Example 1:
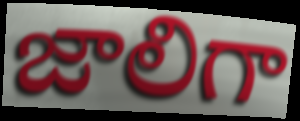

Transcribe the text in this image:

జాలిగా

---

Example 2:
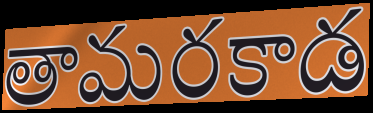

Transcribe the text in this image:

తామరకాడ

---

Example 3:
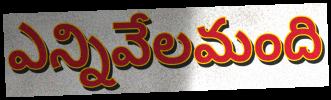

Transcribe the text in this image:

ఎన్నివేలమంది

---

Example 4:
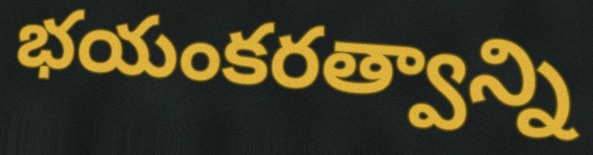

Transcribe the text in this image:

భయంకరత్వాన్ని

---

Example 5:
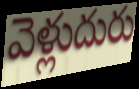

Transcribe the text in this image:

వెళ్లుదురు